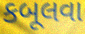
કબૂલવા